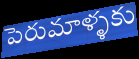
పెరుమాళ్ళకు